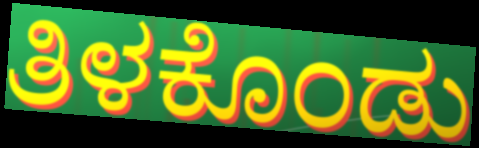
ತಿಳಕೊಂಡು